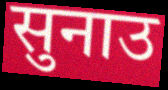
सुनाउ